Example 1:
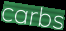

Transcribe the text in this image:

carbs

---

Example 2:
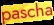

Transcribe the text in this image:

pascha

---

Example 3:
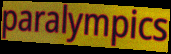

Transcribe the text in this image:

paralympics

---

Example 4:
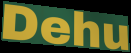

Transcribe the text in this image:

Dehu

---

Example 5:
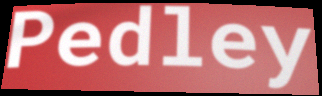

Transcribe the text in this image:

Pedley